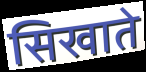
सिखाते